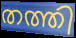
തത്തി